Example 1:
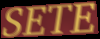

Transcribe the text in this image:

SETE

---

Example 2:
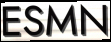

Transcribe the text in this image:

ESMN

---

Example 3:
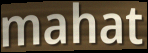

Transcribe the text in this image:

mahat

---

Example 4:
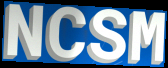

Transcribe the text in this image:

NCSM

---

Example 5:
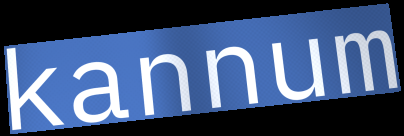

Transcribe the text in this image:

kannum